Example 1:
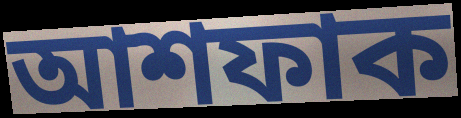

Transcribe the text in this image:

আশফাক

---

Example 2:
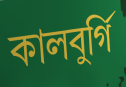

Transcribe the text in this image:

কালবুর্গি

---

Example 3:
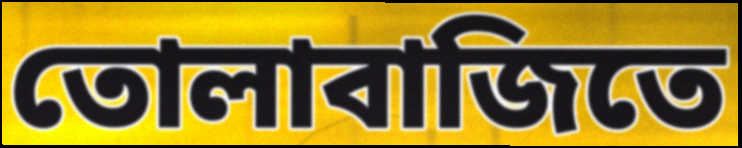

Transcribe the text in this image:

তোলাবাজিতে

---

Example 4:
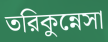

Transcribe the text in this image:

তরিকুন্নেসা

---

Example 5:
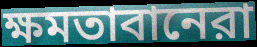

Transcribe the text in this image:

ক্ষমতাবানেরা